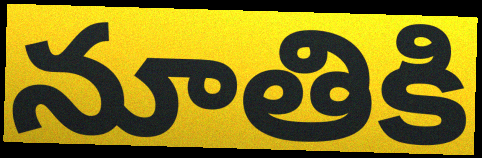
నూతికి